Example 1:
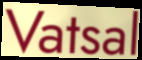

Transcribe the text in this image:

Vatsal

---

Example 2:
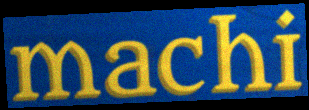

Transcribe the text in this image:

machi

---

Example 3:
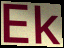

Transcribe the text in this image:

Ek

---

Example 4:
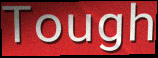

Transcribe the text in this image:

Tough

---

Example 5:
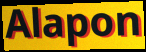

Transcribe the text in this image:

Alapon